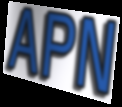
APN